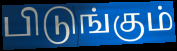
பிடுங்கும்